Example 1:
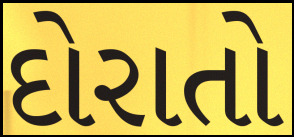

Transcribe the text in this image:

દોરાતો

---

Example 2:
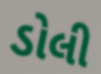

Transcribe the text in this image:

ડોલી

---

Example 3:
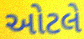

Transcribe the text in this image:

ઓટલે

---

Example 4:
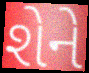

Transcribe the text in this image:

શેને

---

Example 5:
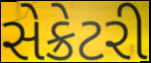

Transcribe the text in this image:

સેક્રેટરી